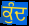
ਕੁੰਦ